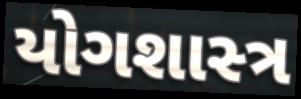
યોગશાસ્‍ત્ર